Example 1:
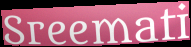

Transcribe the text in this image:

Sreemati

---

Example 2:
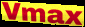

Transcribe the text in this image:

Vmax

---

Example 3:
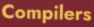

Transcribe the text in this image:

Compilers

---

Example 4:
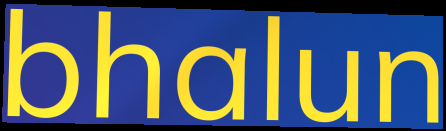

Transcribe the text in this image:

bhalun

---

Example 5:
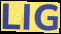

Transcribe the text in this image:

LIG